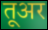
तूअर